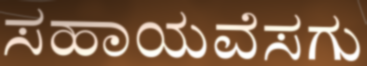
ಸಹಾಯವೆಸಗು